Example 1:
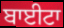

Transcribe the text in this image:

ਬਾਈਟਾ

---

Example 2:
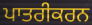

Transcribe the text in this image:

ਪਾਤਰੀਕਰਨ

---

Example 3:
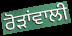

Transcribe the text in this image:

ਰੋੜਾਂਵਾਲੀ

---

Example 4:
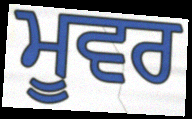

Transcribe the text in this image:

ਮੂਵਰ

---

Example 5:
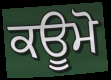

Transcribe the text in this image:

ਕਊਮੋ